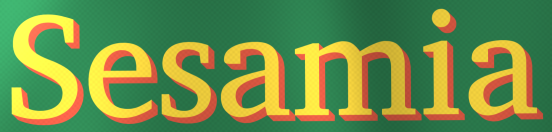
Sesamia